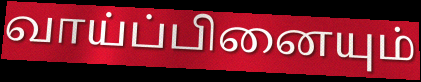
வாய்ப்பினையும்